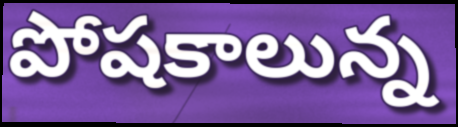
పోషకాలున్న